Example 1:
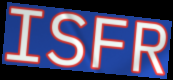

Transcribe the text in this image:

ISFR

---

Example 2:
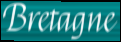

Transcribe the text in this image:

Bretagne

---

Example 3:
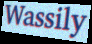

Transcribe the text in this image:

Wassily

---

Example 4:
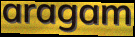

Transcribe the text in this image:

aragam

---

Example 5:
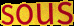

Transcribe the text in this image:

sous